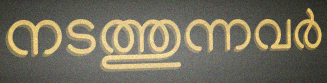
നടത്തുന്നവർ